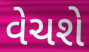
વેચશે